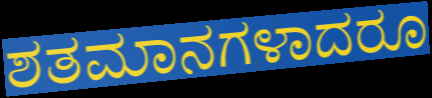
ಶತಮಾನಗಳಾದರೂ